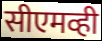
सीएमव्ही